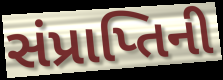
સંપ્રાપ્તિની